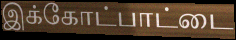
இக்கோட்பாட்டை